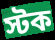
স্টক